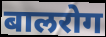
बालरोग